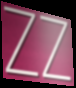
ZZ